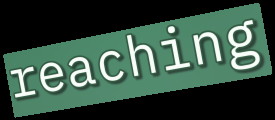
reaching